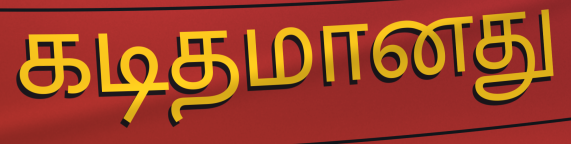
கடிதமானது